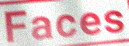
Faces